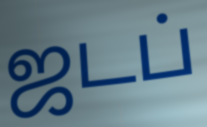
ஜடப்